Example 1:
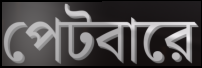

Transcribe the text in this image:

পেটবারে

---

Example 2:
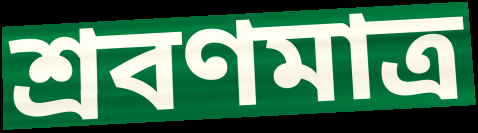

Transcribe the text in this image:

শ্রবণমাত্র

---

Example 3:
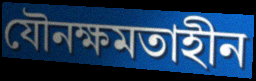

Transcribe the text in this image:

যৌনক্ষমতাহীন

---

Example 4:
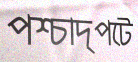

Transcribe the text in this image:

পশ্চাদ্‌পটে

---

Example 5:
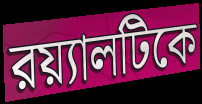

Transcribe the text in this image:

রয়্যালটিকে